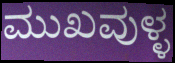
ಮುಖವುಳ್ಳ